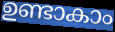
ഉണ്ടാകാം